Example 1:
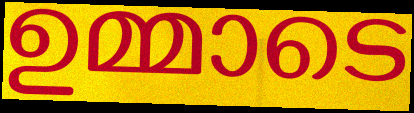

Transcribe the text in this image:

ഉമ്മാടെ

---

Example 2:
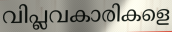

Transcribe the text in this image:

വിപ്ലവകാരികളെ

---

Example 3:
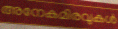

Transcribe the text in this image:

അനേകമിരവുകൾ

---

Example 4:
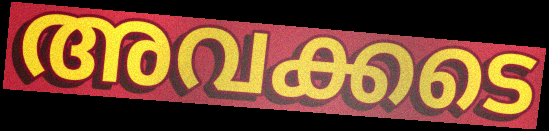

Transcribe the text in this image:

അവക്കടെ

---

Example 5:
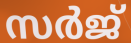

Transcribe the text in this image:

സർജ്